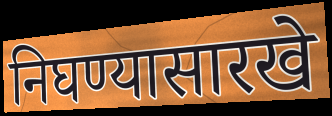
निघण्यासारखे